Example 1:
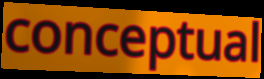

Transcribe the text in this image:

conceptual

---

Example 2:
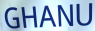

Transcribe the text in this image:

GHANU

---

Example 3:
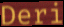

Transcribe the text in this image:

Deri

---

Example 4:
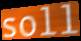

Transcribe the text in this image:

soll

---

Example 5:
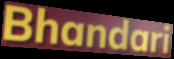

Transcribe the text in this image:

Bhandari